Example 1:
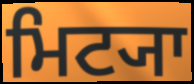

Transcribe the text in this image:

ਮਿਟ੍ਯਾ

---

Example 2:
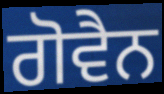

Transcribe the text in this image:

ਗੋਵੈਨ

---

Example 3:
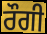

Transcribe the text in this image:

ਰੌਗੀ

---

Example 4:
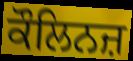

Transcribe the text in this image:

ਕੌਲਿਨਜ਼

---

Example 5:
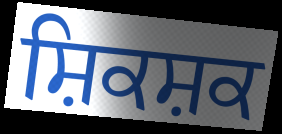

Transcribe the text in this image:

ਸ਼ਿਕਸ਼ਕ